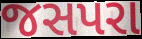
જસપરા